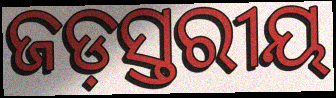
ଜଡ଼ସ୍ତରୀୟ